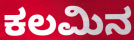
ಕಲಮಿನ